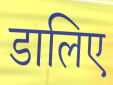
डालिए